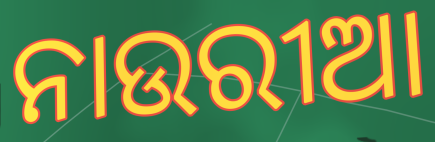
ନାଉରୀଆ